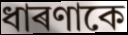
ধাৰণাকে